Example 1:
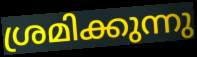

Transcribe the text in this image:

ശ്രമിക്കുന്നു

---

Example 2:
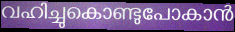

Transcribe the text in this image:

വഹിച്ചുകൊണ്ടുപോകാൻ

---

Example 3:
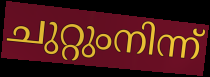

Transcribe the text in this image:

ചുറ്റുംനിന്ന്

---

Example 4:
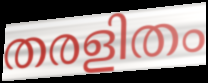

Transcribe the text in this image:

തരളിതം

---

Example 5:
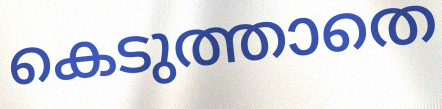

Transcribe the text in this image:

കെടുത്താതെ